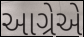
આગ્રેએ